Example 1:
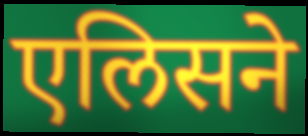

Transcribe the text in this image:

एलिसने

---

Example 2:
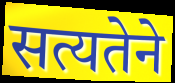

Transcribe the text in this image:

सत्यतेने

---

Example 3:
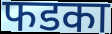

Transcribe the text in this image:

फडका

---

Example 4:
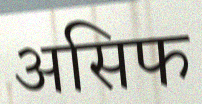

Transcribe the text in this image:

असिफ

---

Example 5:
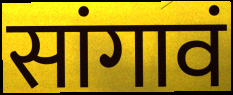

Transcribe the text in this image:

सांगावं